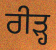
ਰੀੜ੍ਹ